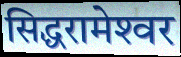
सिद्धरामेश्‍वर